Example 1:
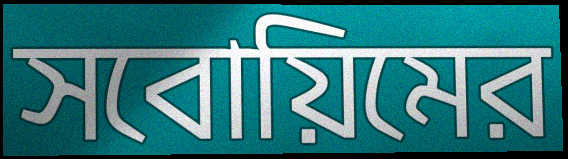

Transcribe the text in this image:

সবোয়িমের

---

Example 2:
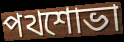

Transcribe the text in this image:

পথশোভা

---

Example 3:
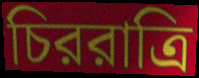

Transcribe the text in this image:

চিররাত্রি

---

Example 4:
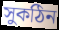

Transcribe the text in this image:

সুকঠিন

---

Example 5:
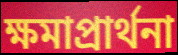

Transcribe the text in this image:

ক্ষমাপ্রার্থনা